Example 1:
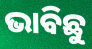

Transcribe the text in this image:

ଭାବିଛୁ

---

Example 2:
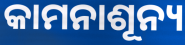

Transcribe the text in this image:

କାମନାଶୂନ୍ୟ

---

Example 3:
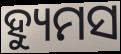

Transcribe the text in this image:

ହ୍ୟୁମସ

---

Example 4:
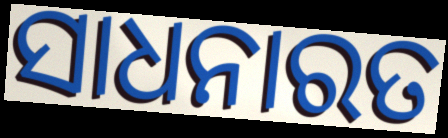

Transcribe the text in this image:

ସାଧନାରତ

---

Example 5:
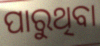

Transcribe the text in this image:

ପାରୁଥିବା